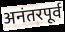
अनंतरपूर्व